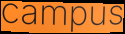
campus